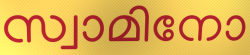
സ്വാമിനോ